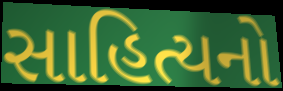
સાહિત્યનો